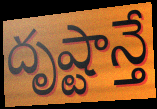
దృష్టాన్తే